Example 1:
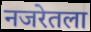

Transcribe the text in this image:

नजरेतला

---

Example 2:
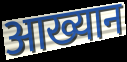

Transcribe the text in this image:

आख्यान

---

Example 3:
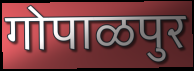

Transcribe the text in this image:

गोपाळपुर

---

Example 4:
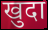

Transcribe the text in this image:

खुदा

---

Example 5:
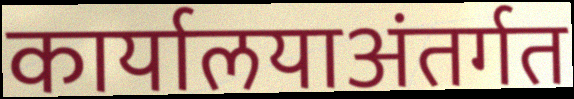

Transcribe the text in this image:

कार्यालयाअंतर्गत